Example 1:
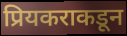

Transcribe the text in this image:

प्रियकराकडून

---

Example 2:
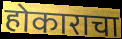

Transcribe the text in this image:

होकाराचा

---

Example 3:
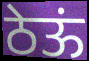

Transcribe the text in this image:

ठेऊं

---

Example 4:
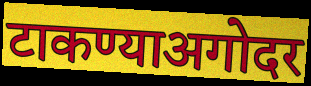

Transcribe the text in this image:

टाकण्याअगोदर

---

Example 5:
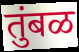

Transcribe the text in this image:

तुंबळ